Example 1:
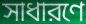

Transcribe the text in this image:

সাধারণে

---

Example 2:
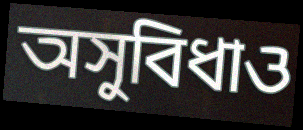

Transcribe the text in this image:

অসুবিধাও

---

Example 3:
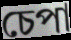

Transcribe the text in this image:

চেপা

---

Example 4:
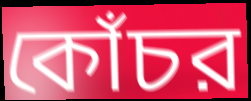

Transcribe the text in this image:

কোঁচর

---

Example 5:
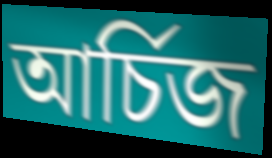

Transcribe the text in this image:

আর্চিজ